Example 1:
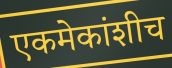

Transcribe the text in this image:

एकमेकांशीच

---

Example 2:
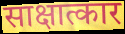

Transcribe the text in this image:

साक्षात्कार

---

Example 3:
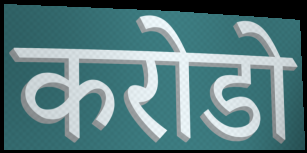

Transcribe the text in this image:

करोडो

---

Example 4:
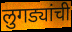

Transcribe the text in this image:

लुगड्यांची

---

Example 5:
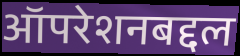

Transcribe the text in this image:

ऑपरेशनबद्दल